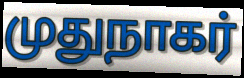
முதுநாகர்